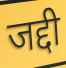
जद्दी